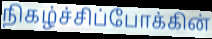
நிகழ்ச்சிப்போக்கின்